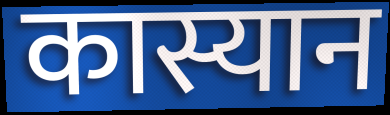
कास्यान